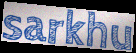
sarkhu